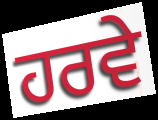
ਹਰਵੇ